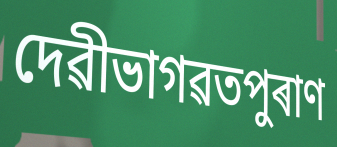
দেৱীভাগৱতপুৰাণ